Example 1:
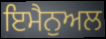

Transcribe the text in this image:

ਇਮੈਨੁਅਲ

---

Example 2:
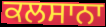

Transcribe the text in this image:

ਕਲਸਾਨਾ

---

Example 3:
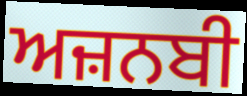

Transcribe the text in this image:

ਅਜ਼ਨਬੀ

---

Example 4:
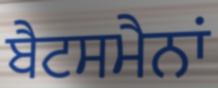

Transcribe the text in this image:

ਬੈਟਸਮੈਨਾਂ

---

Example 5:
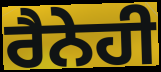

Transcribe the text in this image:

ਰੈਨੇਹੀ